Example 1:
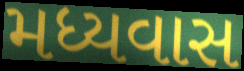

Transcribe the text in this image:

મધ્યવાસ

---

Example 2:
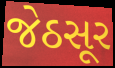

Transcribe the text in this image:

જેઠસૂર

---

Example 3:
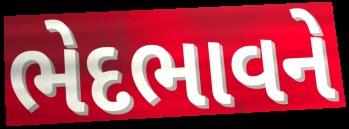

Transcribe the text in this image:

ભેદભાવને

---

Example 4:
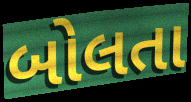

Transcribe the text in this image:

બોલતા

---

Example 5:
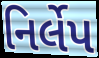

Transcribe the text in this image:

નિર્લેપ